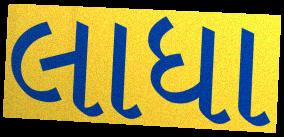
લાધા